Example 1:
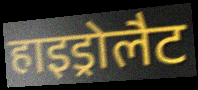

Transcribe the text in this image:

हाइड्रोलैट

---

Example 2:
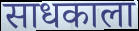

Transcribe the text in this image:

साधकाला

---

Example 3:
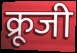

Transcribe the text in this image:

क्रूजी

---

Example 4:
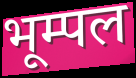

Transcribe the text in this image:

भूम्पल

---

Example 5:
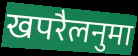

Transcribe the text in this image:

खपरैलनुमा